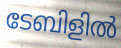
ടേബിളിൽ